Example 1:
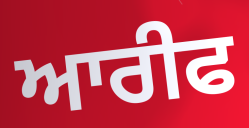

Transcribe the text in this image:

ਆਰੀਫ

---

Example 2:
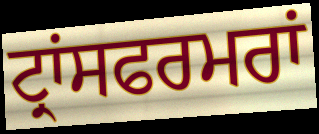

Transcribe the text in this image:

ਟ੍ਰਾਂਸਫਰਮਰਾਂ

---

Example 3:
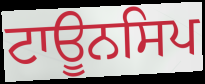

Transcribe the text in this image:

ਟਾਊਨਸਿਪ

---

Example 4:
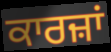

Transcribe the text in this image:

ਕਾਰਜ਼ਾਂ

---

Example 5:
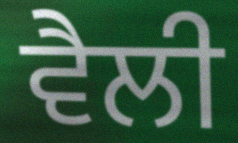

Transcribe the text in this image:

ਵੈਲੀ